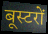
बूस्टरों